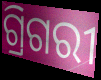
ଗ୍ରିଗରୀ